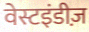
वेस्टइंडीज़